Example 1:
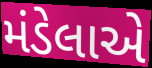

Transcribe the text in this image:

મંડેલાએ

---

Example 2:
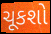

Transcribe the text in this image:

ચૂકશો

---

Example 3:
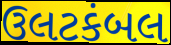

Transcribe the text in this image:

ઉલટકંબલ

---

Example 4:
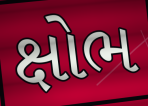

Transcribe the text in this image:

ક્ષોભ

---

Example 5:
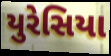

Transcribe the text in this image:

યુરેસિયા